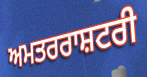
ਅਮਤਰਰਾਸ਼ਟਰੀ